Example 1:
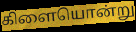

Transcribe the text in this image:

கிளையொன்று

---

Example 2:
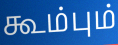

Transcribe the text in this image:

கூம்பும்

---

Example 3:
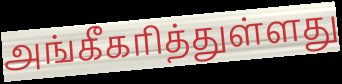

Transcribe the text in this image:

அங்கீகரித்துள்ளது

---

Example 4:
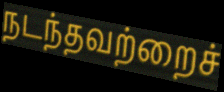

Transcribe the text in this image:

நடந்தவற்றைச்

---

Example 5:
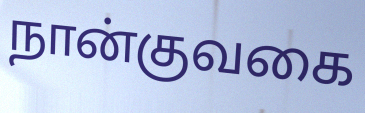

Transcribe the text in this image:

நான்குவகை